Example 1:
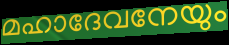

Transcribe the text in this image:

മഹാദേവനേയും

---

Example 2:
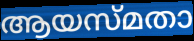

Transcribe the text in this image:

ആയസ്മതാ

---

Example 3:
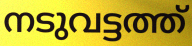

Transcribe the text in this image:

നടുവട്ടത്ത്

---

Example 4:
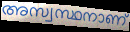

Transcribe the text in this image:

അസ്വസ്ഥനാണ്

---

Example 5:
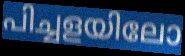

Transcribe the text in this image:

പിച്ചളയിലോ